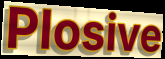
Plosive